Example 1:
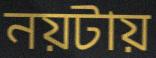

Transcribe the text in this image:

নয়টায়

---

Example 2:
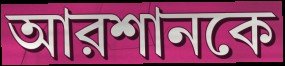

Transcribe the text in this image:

আরশানকে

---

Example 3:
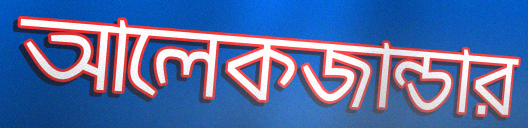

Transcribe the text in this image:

আলেকজান্ডার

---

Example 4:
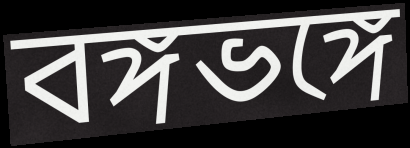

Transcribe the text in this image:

বঙ্গভঙ্গে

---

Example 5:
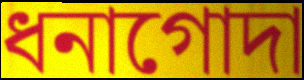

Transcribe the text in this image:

ধনাগোদা